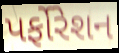
પર્ફોરેશન